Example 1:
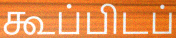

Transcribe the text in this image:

கூப்பிடப்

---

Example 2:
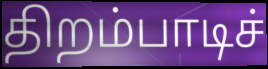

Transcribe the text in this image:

திறம்பாடிச்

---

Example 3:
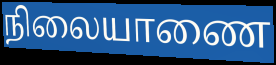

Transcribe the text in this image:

நிலையாணை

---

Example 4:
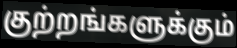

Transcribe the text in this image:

குற்றங்களுக்கும்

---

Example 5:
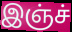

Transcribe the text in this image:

இஞ்ச்